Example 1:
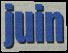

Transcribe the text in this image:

juin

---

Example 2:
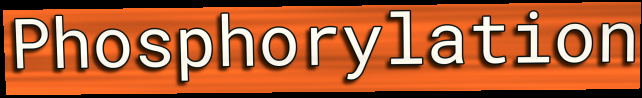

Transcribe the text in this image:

Phosphorylation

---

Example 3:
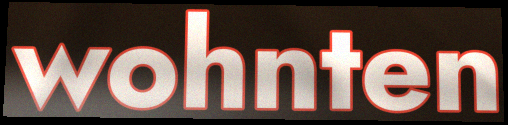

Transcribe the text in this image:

wohnten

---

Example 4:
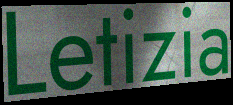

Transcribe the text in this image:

Letizia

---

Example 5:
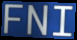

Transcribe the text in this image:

FNI